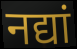
नद्यां